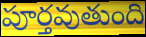
పూర్తవుతుంది